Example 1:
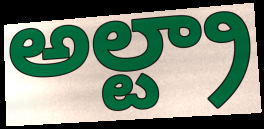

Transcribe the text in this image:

అల్ట్రా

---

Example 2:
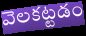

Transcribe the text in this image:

వెలకట్టడం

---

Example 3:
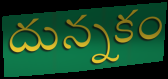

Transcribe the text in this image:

దున్నకం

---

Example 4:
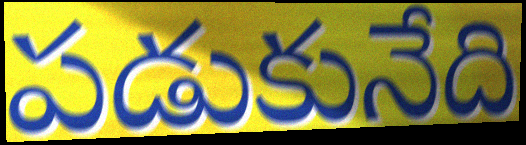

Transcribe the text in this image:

పడుకునేది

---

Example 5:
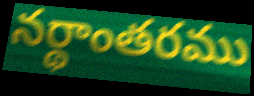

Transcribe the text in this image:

నర్థాంతరము